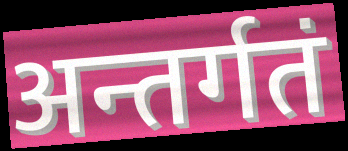
अन्तर्गतं